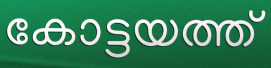
കോട്ടയത്ത്